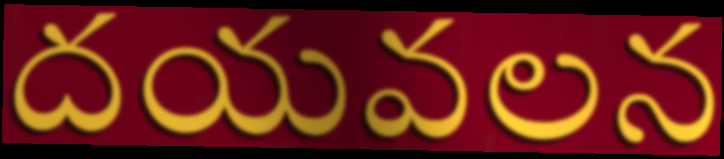
దయవలన